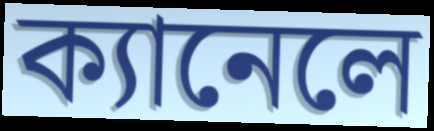
ক্যানেলে